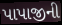
પાપાજીની